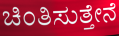
ಚಿಂತಿಸುತ್ತೇನೆ